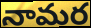
నామర